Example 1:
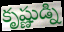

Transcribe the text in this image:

కృష్ణుడ్ని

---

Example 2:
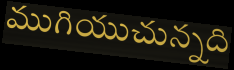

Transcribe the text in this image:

ముగియుచున్నది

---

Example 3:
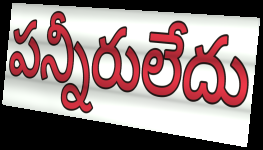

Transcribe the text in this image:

పన్నీరులేదు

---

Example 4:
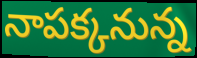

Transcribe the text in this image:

నాపక్కనున్న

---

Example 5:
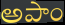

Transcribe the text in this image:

అపాం